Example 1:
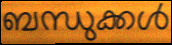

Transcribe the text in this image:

ബന്ധുക്കൾ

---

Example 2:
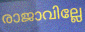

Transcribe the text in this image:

രാജാവില്ലേ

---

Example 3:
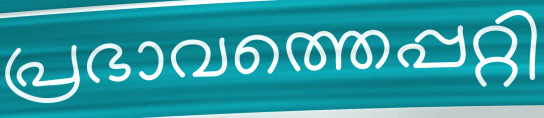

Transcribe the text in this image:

പ്രഭാവത്തെപ്പറ്റി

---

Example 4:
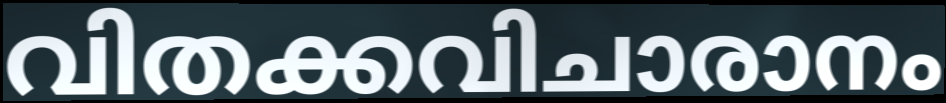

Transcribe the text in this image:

വിതക്കവിചാരാനം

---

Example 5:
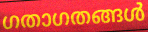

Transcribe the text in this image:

ഗതാഗതങ്ങൾ